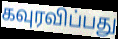
கவுரவிப்பது